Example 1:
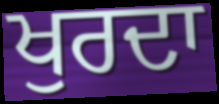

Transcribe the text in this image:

ਖੁਰਦਾ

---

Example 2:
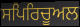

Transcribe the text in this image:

ਸਪਿਰਿਚੂਅਲ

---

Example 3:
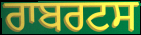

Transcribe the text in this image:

ਰਾਬਰਟਸ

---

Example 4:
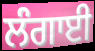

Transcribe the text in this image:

ਲੰਗਾਈ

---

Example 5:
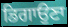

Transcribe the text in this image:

ਡਿਗਾਉਣਾ